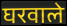
घरवाले